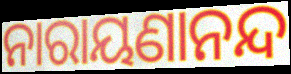
ନାରାୟଣାନନ୍ଦ